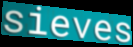
sieves